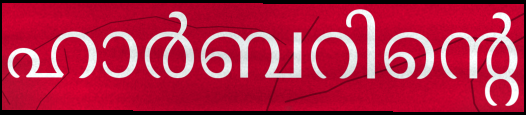
ഹാർബറിന്റെ